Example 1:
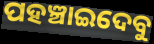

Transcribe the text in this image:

ପହଞ୍ଚାଇଦେବୁ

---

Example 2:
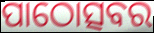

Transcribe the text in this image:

ପାଠୋତ୍ସବର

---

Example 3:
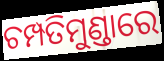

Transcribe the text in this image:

ଚମ୍ପତିମୁଣ୍ଡାରେ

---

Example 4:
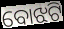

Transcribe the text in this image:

ବୋଝଟି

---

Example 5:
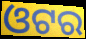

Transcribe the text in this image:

ଓଟର